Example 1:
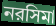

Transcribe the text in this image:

নরসিমা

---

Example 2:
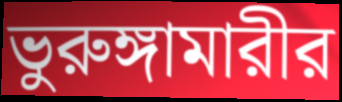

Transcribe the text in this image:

ভুরুঙ্গামারীর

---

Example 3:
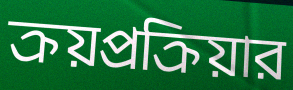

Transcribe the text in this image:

ক্রয়প্রক্রিয়ার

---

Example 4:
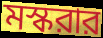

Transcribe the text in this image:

মস্করার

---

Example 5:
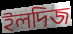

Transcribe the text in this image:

ইলদিজ